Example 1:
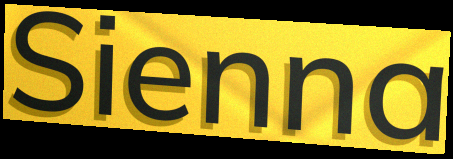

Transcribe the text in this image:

Sienna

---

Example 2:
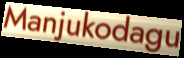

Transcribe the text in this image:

Manjukodagu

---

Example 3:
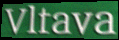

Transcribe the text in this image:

Vltava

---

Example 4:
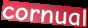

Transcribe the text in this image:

cornual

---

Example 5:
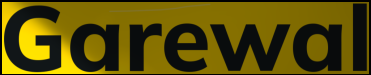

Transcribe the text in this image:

Garewal